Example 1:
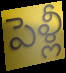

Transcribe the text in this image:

పెళ్లీ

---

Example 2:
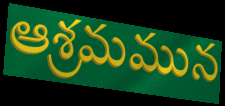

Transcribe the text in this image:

ఆశ్రమమున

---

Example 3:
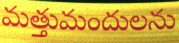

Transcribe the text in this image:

మత్తుమందులను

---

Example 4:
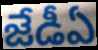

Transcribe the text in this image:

జేడీఏ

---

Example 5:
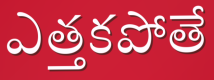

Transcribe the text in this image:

ఎత్తకపోతే